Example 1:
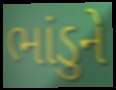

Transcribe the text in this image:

ભાંડુને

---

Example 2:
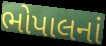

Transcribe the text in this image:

ભોપાલનાં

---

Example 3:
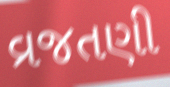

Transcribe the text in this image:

વ્રજતણી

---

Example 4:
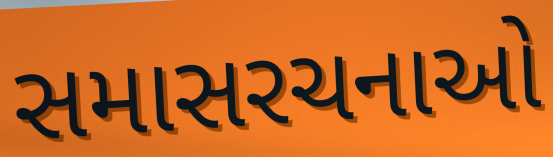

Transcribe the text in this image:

સમાસરચનાઓ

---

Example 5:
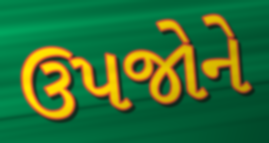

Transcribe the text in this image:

ઉપજોને